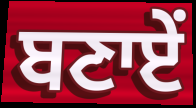
ਬਣਾਏਂ